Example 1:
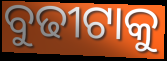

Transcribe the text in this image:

ବୁଢୀଟାକୁ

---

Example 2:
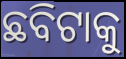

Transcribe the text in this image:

ଛବିଟାକୁ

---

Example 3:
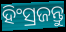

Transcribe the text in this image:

ହିଂସ୍ରଜନ୍ତୁ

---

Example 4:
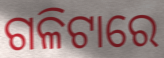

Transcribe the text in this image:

ଗଳିଟାରେ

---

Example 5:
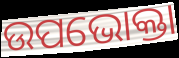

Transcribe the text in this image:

ଉପଭୋକ୍ତା